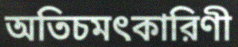
অতিচমৎকারিণী